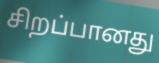
சிறப்பானது